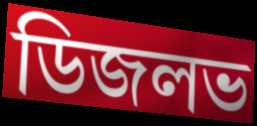
ডিজলভ